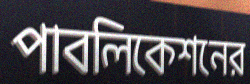
পাবলিকেশনের